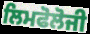
ਲਿਮਫੋਲੋਜੀ